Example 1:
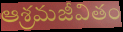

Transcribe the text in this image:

ఆశ్రమజీవితం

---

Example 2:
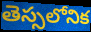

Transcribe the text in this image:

తెస్సలోనిక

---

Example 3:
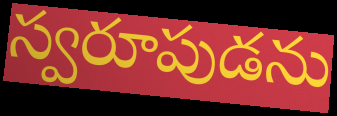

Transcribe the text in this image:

స్వరూపుడను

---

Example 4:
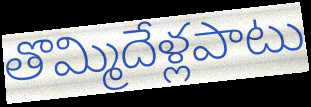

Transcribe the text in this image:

తొమ్మిదేళ్లపాటు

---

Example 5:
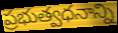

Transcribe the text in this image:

ప్రభుత్వధనాన్ని